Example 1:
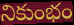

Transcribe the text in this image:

నికుంభం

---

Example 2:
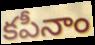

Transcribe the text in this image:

కపీనాం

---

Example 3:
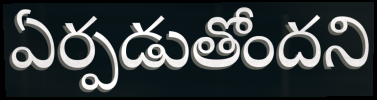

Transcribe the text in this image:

ఏర్పడుతోందని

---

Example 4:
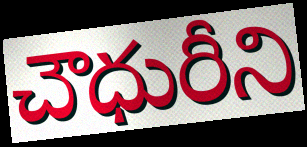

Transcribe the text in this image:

చౌధురీని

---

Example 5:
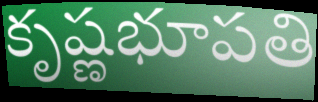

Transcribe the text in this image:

కృష్ణభూపతి